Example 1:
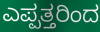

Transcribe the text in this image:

ಎಪ್ಪತ್ತರಿಂದ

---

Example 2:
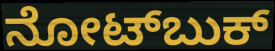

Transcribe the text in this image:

ನೋಟ್‌ಬುಕ್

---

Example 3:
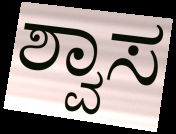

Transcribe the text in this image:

ಶ್ವಾಸ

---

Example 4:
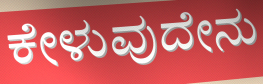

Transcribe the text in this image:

ಕೇಳುವುದೇನು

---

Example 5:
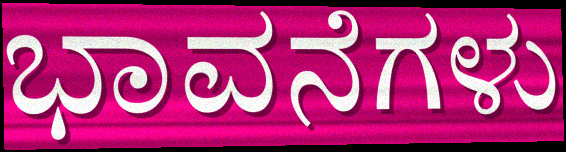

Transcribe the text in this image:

ಭಾವನೆಗಳು